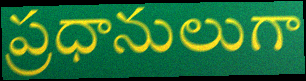
ప్రధానులుగా